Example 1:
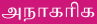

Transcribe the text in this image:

அநாகரிக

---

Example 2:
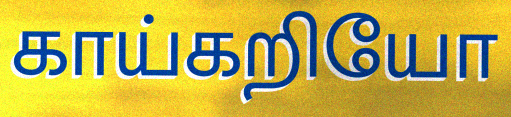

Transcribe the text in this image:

காய்கறியோ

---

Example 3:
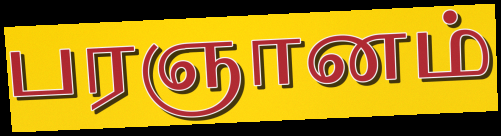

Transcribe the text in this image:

பரஞானம்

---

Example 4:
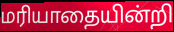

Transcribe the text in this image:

மரியாதையின்றி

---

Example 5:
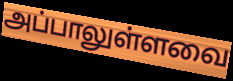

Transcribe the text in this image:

அப்பாலுள்ளவை